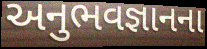
અનુભવજ્ઞાનના